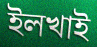
ইলখাই